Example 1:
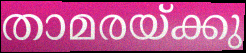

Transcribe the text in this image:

താമരയ്ക്കു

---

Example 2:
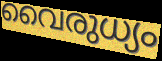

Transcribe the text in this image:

വൈരുധ്യം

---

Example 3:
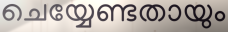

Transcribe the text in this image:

ചെയ്യേണ്ടതായും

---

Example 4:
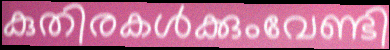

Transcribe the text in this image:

കുതിരകൾക്കുംവേണ്ടി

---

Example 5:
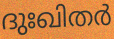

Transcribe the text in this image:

ദുഃഖിതർ